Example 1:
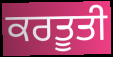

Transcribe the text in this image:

ਕਰਤੂਤੀ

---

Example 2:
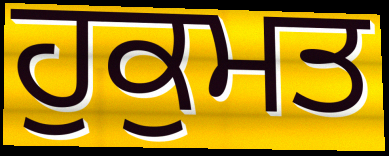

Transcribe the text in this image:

ਹੁਕੁਮਤ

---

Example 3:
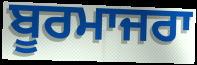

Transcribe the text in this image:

ਬੂਰਮਾਜਰਾ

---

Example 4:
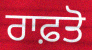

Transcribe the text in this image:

ਰਾਫ਼ਤੋ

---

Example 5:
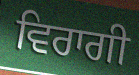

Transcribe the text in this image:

ਵਿਰਾਗੀ